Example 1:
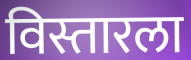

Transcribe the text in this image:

विस्तारला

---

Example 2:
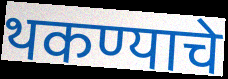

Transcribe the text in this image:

थकण्याचे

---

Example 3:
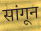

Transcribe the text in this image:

सांगून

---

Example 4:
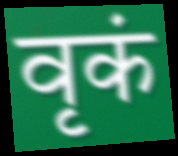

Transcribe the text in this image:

वृकं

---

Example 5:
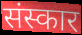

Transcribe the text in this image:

संस्कार